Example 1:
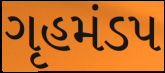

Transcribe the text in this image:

ગૃહમંડપ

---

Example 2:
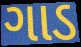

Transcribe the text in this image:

ગાડ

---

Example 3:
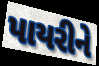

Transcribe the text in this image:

પાયરીને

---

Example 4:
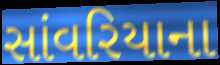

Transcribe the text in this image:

સાંવરિયાના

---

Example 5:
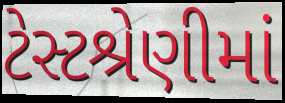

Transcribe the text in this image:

ટેસ્ટશ્રેણીમાં